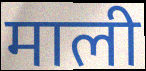
माली